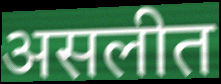
असलीत